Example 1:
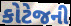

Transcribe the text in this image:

કોટેજની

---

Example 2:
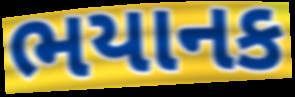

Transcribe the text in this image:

ભયાનક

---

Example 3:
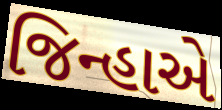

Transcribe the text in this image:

જિન્હાએ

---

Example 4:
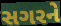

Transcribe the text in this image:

સગરને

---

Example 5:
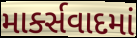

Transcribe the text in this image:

માર્ક્સવાદમાં